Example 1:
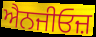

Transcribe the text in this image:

ਐਨਜੀਓਜ਼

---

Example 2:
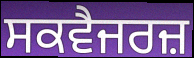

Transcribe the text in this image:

ਸਕਵੈਜਰਜ਼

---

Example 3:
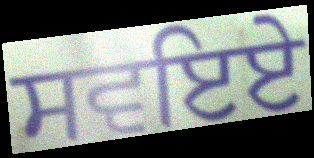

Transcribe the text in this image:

ਸਵਇਏ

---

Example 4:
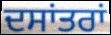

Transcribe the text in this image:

ਦਸਾਂਤਰਾਂ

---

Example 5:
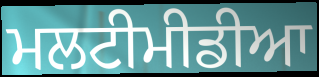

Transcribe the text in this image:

ਮਲਟੀਮੀਡੀਆ